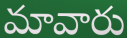
మావారు